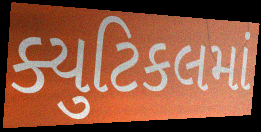
ક્યુટિકલમાં